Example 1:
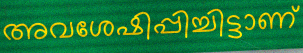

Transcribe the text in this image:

അവശേഷിപ്പിച്ചിട്ടാണ്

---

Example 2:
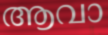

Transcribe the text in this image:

ആവാ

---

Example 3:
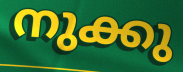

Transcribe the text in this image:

നുക്കു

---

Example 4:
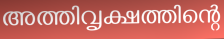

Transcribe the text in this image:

അത്തിവൃക്ഷത്തിന്റെ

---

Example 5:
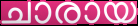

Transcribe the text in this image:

ചാരായ